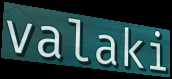
valaki